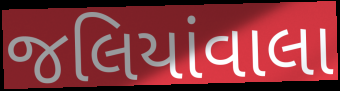
જલિયાંવાલા